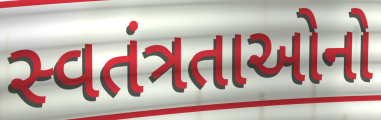
સ્વતંત્રતાઓનો